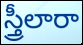
స్త్రీలారా